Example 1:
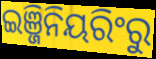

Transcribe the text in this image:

ଇଞ୍ଜିନିୟରିଂରୁ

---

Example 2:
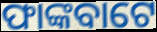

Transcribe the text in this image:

ଫାଙ୍କବାଟେ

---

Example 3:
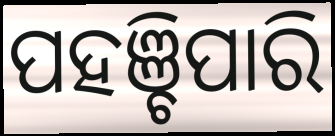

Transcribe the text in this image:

ପହଞ୍ଚିପାରି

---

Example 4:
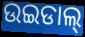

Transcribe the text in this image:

ଉଇଡାଲ୍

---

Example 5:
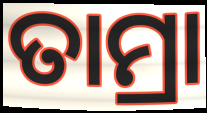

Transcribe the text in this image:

ତାମ୍ରା